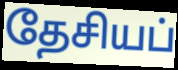
தேசியப்